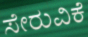
ಸೇರುವಿಕೆ